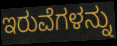
ಇರುವೆಗಳನ್ನು